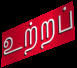
உற்றப்